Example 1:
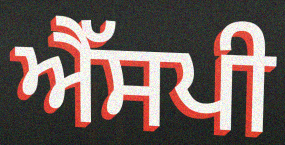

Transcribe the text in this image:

ਐੱਸਪੀ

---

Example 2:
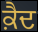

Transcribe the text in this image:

ਕ਼ੈਦ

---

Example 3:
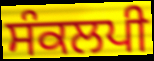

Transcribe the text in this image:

ਸੰਕਲਪੀ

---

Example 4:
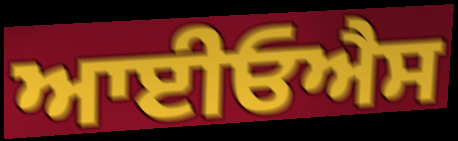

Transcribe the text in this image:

ਆਈਓਐਸ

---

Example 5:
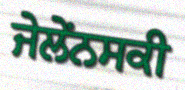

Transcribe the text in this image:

ਜੇਲੇਂਨਸਕੀ